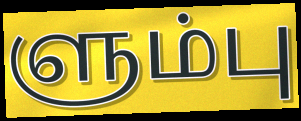
ளும்பு